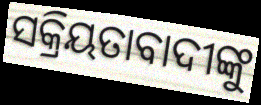
ସକ୍ରିୟତାବାଦୀଙ୍କୁ